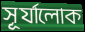
সূর্যালোক